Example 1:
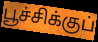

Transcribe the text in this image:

பூச்சிக்குப்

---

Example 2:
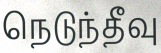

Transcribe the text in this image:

நெடுந்தீவு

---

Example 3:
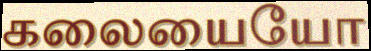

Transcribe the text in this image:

கலையையோ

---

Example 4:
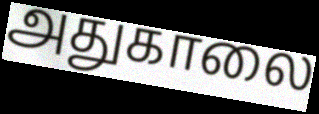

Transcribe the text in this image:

அதுகாலை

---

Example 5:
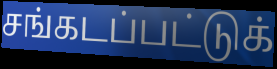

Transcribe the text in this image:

சங்கடப்பட்டுக்